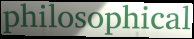
philosophical